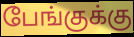
பேங்குக்கு